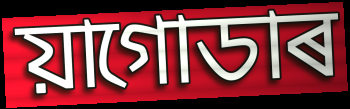
য়াগোডাৰ